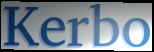
Kerbo